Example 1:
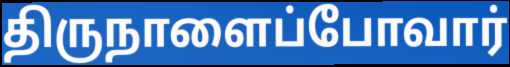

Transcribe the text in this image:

திருநாளைப்போவார்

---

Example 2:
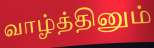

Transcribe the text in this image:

வாழ்த்தினும்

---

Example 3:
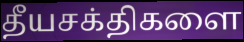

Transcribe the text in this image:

தீயசக்திகளை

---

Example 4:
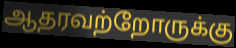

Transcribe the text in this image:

ஆதரவற்றோருக்கு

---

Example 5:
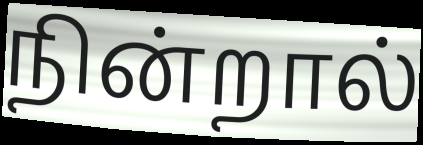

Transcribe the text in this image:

நின்றால்